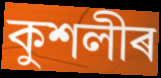
কুশলীৰ